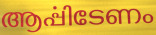
ആൎപ്പിടേണം